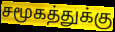
சமூகத்துக்கு